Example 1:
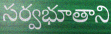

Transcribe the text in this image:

సర్వభూతాని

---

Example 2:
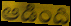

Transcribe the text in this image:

ఆడింది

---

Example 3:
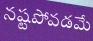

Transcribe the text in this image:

నష్టపోవడమే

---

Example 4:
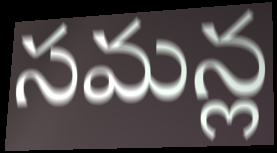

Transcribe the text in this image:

సమన్ల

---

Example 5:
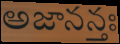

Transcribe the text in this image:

అజానన్తః